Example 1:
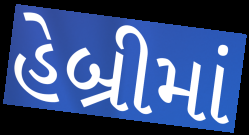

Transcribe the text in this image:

હેબ્રીમાં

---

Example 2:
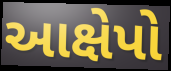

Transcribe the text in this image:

આક્ષેપો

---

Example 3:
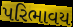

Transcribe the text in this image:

પરિભાવય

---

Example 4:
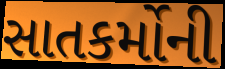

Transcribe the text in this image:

સાતકર્મોની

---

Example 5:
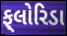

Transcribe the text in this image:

ફ્‌લોરિડા